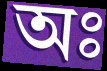
অঃ